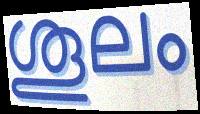
ശൂലം